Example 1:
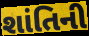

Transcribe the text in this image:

શાંતિની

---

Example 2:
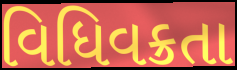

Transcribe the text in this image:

વિધિવક્રતા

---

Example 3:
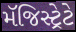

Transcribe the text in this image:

મૅજિસ્ટ્રેટે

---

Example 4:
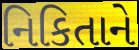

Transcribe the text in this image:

નિકિતાને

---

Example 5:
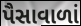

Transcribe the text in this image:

પૈસાવાળાં